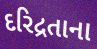
દરિદ્રતાના